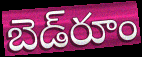
బెడ్‌రూం